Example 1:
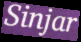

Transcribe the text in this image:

Sinjar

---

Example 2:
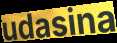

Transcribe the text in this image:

udasina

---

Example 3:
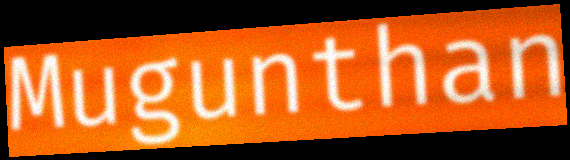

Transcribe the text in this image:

Mugunthan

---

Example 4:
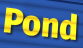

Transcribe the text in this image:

Pond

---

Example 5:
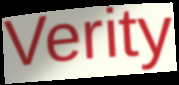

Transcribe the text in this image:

Verity